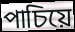
পাচিয়ে